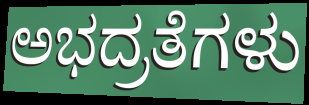
ಅಭದ್ರತೆಗಳು